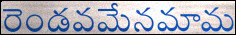
రెండవమేనమామ